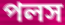
পলস